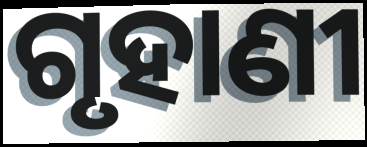
ଗୃହାଣୀ